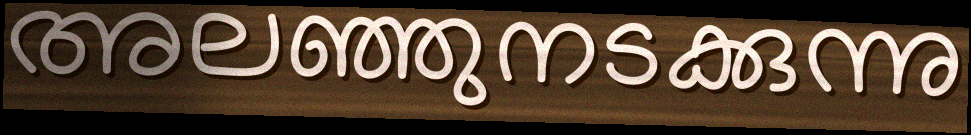
അലഞ്ഞുനടക്കുന്നു